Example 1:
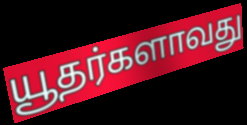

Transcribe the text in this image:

யூதர்களாவது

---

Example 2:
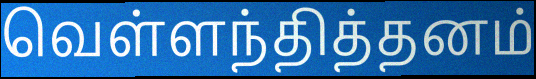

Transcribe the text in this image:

வெள்ளந்தித்தனம்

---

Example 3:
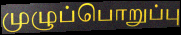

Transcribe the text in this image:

முழுப்பொறுப்பு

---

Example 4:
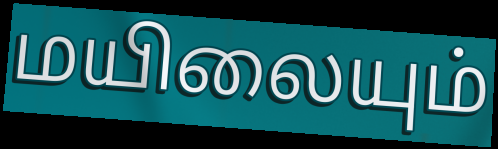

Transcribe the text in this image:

மயிலையும்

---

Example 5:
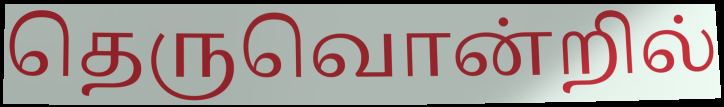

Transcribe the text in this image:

தெருவொன்றில்